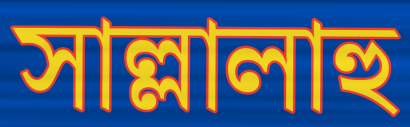
সাল্লালাহু